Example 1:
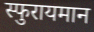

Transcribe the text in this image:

स्फुरायमान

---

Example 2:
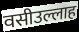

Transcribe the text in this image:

वसीउल्लाह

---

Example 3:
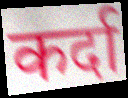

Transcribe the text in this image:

कर्दा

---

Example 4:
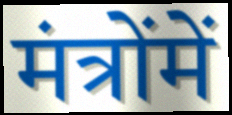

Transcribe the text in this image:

मंत्रोंमें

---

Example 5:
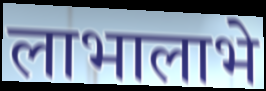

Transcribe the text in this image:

लाभालाभे